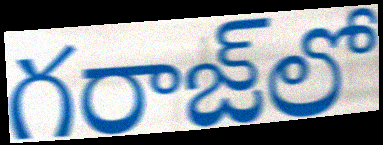
గరాజ్‌లో